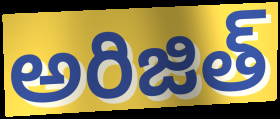
అరిజిత్